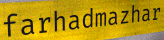
farhadmazhar